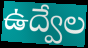
ఉద్వేల